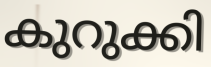
കുറുക്കി